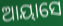
ଆୟାସେ